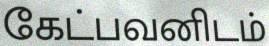
கேட்பவனிடம்